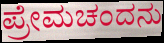
ಪ್ರೇಮಚಂದನು